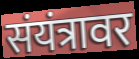
संयंत्रावर